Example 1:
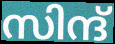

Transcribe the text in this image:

സിന്ദ്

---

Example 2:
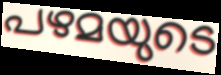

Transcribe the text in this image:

പഴമയുടെ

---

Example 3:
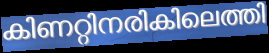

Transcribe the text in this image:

കിണറ്റിനരികിലെത്തി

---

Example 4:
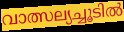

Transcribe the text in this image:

വാത്സല്യച്ചൂടിൽ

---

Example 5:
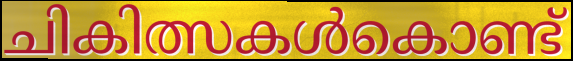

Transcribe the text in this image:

ചികിത്സകൾകൊണ്ട്